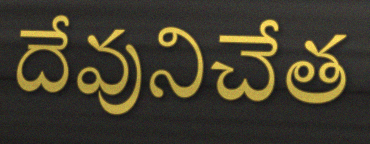
దేవునిచేత